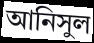
আনিসুল